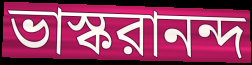
ভাস্করানন্দ